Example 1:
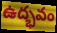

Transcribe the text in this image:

ఉద్భవం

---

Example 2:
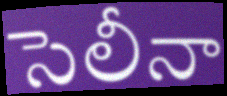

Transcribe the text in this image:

సెలీనా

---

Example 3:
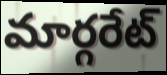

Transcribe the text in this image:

మార్గరేట్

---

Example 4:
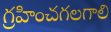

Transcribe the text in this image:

గ్రహించగలగాలి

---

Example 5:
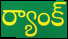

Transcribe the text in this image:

ర్యాంక్